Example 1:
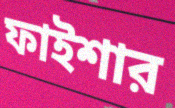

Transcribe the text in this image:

ফাইশার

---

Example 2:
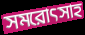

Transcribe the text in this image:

সমরোৎসাহ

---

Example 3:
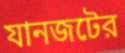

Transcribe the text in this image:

যানজটের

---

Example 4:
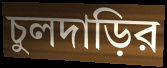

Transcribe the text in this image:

চুলদাড়ির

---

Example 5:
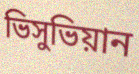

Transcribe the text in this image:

ভিসুভিয়ান